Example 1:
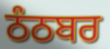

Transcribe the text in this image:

ਠੰਠਬਰ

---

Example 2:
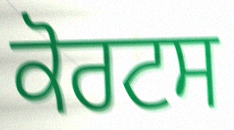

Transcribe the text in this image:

ਕੋਰਟਸ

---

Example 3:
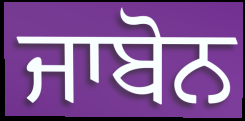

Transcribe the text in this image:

ਜਾਬੋਨ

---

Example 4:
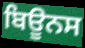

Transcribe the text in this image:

ਬਿਊਨਸ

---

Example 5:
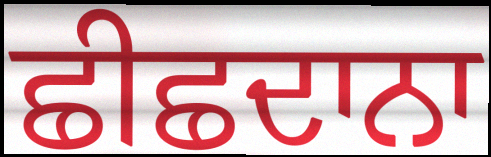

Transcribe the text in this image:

ਛੀਛਦਾਨਾ